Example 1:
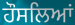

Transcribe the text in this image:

ਹੌਸਲਿਆਂ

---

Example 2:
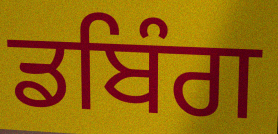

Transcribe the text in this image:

ਡਬਿੰਗ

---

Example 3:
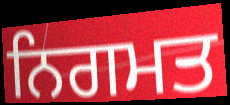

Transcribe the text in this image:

ਨਿਗਮਤ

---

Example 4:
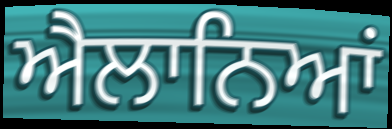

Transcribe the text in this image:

ਐਲਾਨਿਆਂ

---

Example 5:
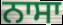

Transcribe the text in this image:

ਨਾਸਾ